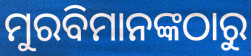
ମୁରବିମାନଙ୍କଠାରୁ